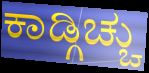
ಕಾಡ್ಗಿಚ್ಚು